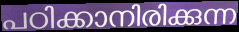
പഠിക്കാനിരിക്കുന്ന